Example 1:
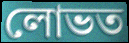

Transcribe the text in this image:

লোভত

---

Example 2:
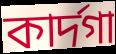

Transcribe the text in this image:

কাৰ্দগা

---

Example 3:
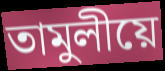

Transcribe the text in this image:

তামুলীয়ে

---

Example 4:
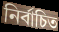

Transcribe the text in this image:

নিৰ্বাচিত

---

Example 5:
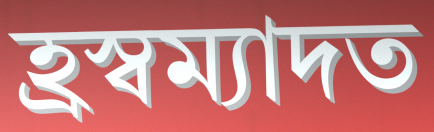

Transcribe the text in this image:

হ্ৰস্বম্যাদত